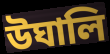
উঘালি